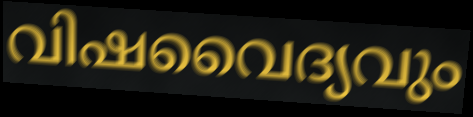
വിഷവൈദ്യവും